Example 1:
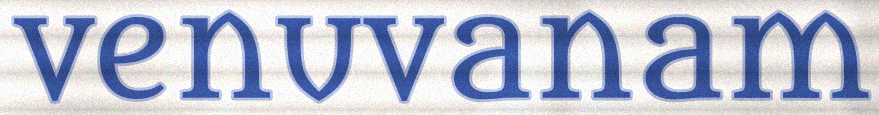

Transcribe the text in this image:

venuvanam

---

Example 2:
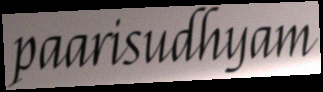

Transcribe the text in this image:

paarisudhyam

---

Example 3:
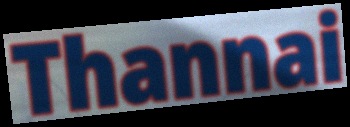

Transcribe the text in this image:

Thannai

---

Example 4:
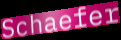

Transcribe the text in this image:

Schaefer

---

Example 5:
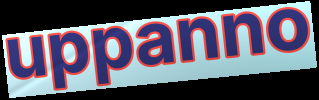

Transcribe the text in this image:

uppanno